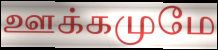
ஊக்கமுமே